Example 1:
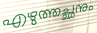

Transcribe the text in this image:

എഴുത്തച്ഛനും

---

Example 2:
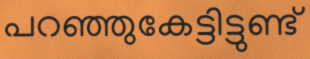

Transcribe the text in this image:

പറഞ്ഞുകേട്ടിട്ടുണ്ട്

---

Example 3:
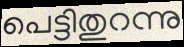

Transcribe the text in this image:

പെട്ടിതുറന്നു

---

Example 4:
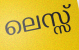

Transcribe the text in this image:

ലെസ്സ്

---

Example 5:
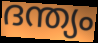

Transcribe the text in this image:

ദന്ത്യം